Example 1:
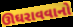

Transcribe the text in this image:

ઊઘરાવવાનો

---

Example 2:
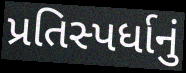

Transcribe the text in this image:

પ્રતિસ્પર્ધાનું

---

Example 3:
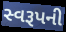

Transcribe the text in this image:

સ્વરૂપની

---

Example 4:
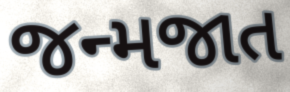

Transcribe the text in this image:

જન્મજાત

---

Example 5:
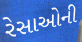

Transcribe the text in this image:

રેસાઓની